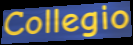
Collegio